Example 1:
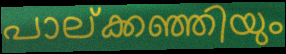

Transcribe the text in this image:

പാല്ക്കഞ്ഞിയും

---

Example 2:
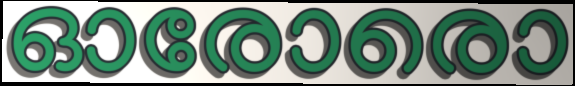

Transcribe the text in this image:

ഓരോരൊ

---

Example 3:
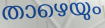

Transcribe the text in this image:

താഴെയും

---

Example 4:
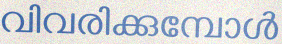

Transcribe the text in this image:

വിവരിക്കുമ്പോൾ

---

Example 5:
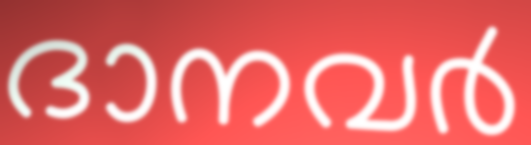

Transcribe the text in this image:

ദാനവർ